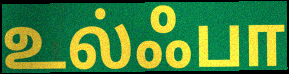
உல்ஃபா